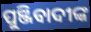
ପୁଞ୍ଜିବାଦୀଙ୍କ